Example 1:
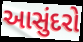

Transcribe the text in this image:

આસુંદરો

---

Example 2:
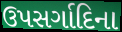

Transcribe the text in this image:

ઉપસર્ગાદિના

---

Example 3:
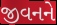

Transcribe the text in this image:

જીવનને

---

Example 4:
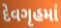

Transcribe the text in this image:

દેવગૃહમાં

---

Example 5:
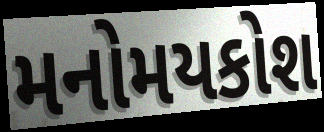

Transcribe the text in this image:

મનોમયકોશ